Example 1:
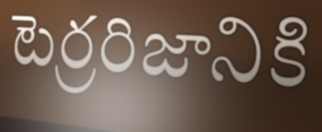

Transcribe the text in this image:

టెర్రరిజానికి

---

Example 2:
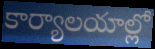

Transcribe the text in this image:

కార్యాలయాల్లో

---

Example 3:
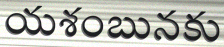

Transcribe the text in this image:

యశంబునకు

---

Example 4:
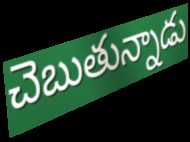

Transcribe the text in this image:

చెబుతున్నాడు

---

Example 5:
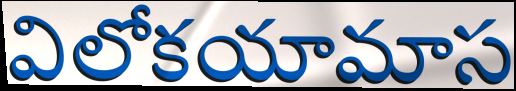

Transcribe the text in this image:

విలోకయామాస